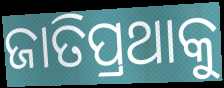
ଜାତିପ୍ରଥାକୁ